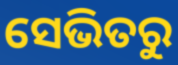
ସେଭିତରୁ